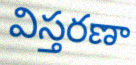
విస్తరణా